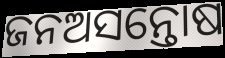
ଜନଅସନ୍ତୋଷ